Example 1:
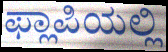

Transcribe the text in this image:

ಫ್ಲಾಪಿಯಲ್ಲಿ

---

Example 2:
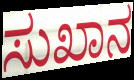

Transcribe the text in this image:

ಸುಖಾನ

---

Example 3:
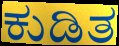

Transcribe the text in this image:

ಕುಡಿತ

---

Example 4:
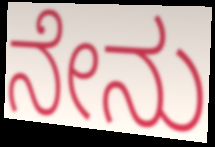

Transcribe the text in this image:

ನೇನು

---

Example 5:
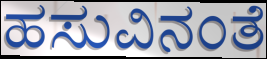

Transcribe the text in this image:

ಹಸುವಿನಂತೆ